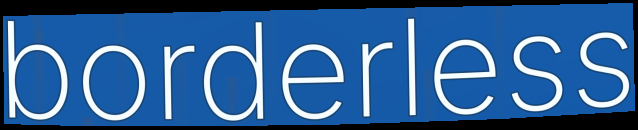
borderless